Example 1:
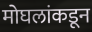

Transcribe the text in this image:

मोघलांकडून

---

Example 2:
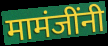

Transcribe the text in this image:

मामंजींनी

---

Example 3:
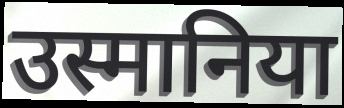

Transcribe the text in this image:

उस्मानिया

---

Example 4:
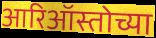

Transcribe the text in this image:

आरिऑस्तोच्या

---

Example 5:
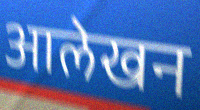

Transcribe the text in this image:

आलेखन